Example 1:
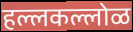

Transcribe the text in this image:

हल्लकल्लोळ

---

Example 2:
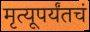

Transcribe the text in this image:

मृत्यूपर्यंतचं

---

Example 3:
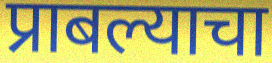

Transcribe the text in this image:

प्राबल्याचा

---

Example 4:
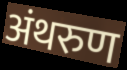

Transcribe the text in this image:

अंथरुण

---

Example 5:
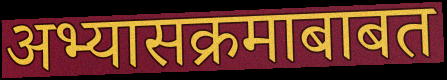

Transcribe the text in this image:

अभ्यासक्रमाबाबत